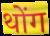
थोंग